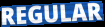
REGULAR